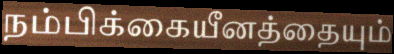
நம்பிக்கையீனத்தையும்